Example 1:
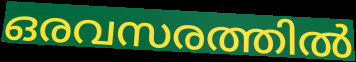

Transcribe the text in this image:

ഒരവസരത്തിൽ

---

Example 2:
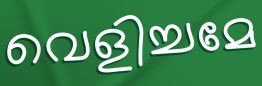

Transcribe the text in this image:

വെളിച്ചമേ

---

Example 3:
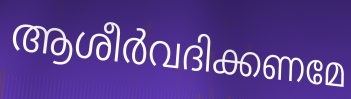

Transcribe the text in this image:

ആശീർവദിക്കണമേ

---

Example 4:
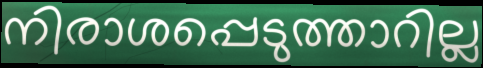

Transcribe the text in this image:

നിരാശപ്പെടുത്താറില്ല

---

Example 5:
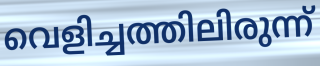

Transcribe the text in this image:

വെളിച്ചത്തിലിരുന്ന്